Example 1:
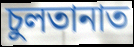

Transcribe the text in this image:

চুলতানাত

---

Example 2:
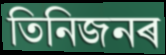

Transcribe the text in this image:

তিনিজনৰ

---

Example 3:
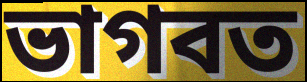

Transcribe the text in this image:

ভাগবত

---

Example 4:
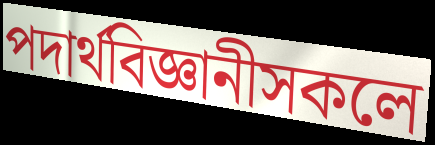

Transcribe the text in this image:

পদাৰ্থবিজ্ঞানীসকলে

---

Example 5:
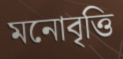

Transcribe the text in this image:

মনোবৃত্তি